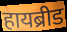
हायब्रीड